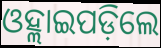
ଓହ୍ଲାଇପଡ଼ିଲେ